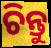
ଚିନ୍ତୁ